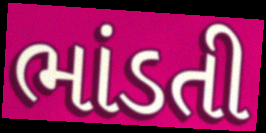
ભાંડતી